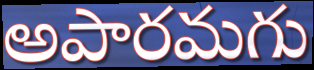
అపారమగు